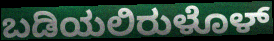
ಬಡಿಯಲಿರುಳೊಳ್